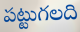
పట్టుగలది